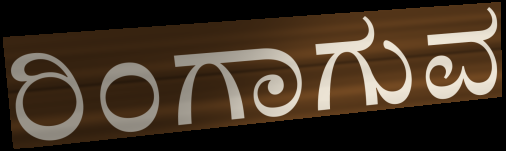
ರಿಂಗಾಗುವ